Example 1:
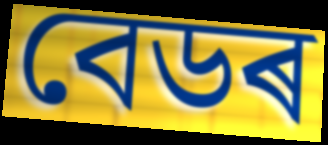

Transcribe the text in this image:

বেডৰ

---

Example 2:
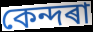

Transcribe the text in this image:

কেন্দৰা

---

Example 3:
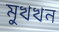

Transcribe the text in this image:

মুখখন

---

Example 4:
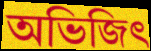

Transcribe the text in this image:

অভিজিৎ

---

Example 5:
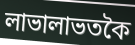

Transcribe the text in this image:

লাভালাভতকৈ